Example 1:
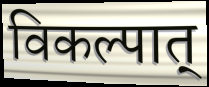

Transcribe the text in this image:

विकल्पात्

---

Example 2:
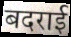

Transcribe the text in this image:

बदराई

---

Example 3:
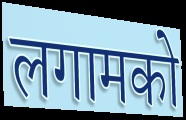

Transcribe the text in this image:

लगामको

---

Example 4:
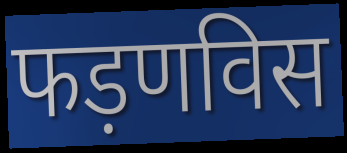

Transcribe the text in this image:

फड़णविस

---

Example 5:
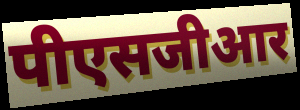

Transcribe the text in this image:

पीएसजीआर